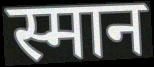
स्मान